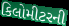
કિલોમીટરની